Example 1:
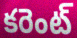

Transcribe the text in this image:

కరెంట్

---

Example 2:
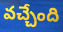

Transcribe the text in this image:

వచ్చేంది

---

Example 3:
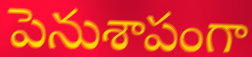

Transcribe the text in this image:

పెనుశాపంగా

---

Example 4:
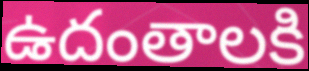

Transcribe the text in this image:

ఉదంతాలకి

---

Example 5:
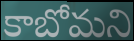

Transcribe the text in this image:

కాబోమని